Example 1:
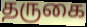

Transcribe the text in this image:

தருகை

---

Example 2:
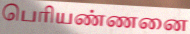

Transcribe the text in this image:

பெரியண்ணனை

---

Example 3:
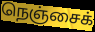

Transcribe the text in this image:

நெஞ்சைக்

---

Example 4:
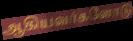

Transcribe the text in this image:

ஆகியவர்களோடு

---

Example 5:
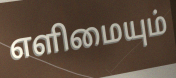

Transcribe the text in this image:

எளிமையும்